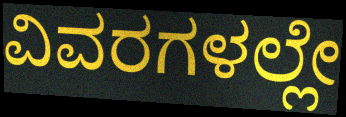
ವಿವರಗಳಲ್ಲೇ